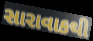
સારાવાકથી